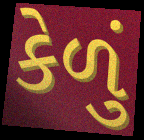
કેળું